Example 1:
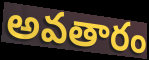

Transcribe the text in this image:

అవతారం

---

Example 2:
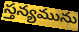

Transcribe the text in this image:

స్తన్యమును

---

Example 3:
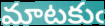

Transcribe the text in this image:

మాటకుఁ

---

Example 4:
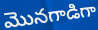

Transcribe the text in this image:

మొనగాడిగా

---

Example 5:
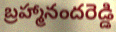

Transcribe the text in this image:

బ్రహ్మానందరెడ్డి